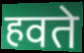
हवते